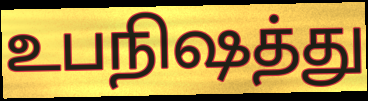
உபநிஷத்து